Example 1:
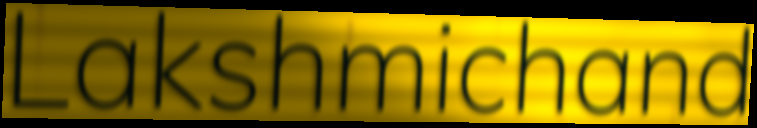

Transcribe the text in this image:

Lakshmichand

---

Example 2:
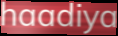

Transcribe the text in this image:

haadiya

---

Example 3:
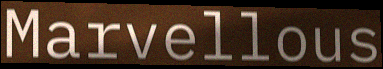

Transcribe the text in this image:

Marvellous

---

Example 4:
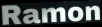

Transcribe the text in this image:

Ramon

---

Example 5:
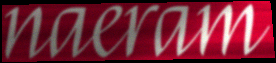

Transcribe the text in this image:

naeram